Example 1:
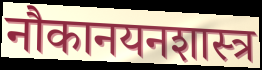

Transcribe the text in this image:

नौकानयनशास्त्र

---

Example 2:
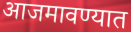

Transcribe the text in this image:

आजमावण्यात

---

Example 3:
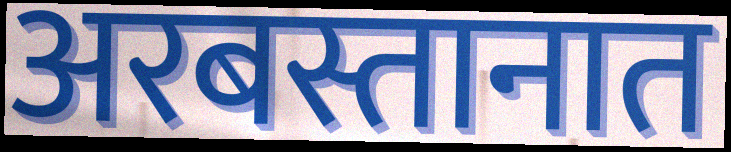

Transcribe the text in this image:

अरबस्तानात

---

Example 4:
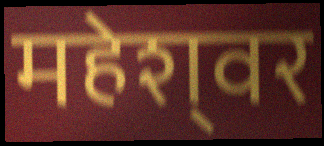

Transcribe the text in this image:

महेश्वर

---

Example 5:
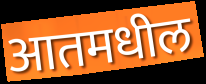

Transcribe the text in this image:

आतमधील